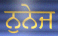
ਨੁਨੇਜ